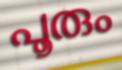
പൂരും